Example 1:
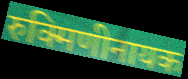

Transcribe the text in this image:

रुक्मिणीनायक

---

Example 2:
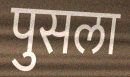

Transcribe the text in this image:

पुसला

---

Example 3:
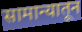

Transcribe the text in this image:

सामान्यातून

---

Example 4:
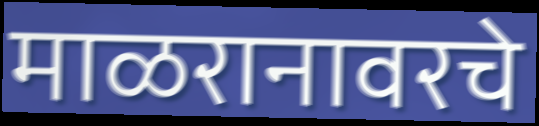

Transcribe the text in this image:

माळरानावरचे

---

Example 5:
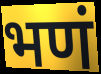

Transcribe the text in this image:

भणं